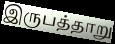
இருபத்தாறு